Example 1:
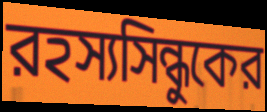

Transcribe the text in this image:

রহস্যসিন্ধুকের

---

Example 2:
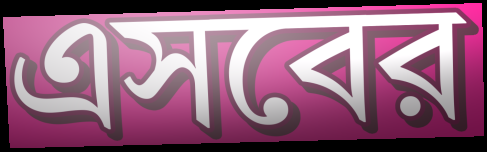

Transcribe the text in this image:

এসবের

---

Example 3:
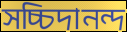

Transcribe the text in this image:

সচ্চিদানন্দ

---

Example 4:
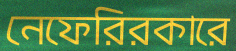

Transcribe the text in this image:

নেফেরিরকারে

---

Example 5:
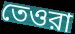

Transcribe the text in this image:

তেওরা